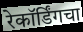
रेकॉर्डिंगचा